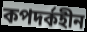
কপদর্কহীন